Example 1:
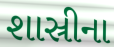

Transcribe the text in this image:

શાસ્રીના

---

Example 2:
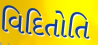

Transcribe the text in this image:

વિદિતોતિ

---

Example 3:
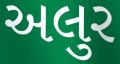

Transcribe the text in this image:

અલુર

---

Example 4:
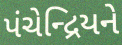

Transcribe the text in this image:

પંચેન્દ્રિયને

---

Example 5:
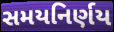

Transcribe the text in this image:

સમયનિર્ણય